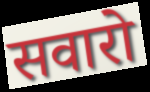
सवारो